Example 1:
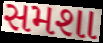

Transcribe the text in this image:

સમશા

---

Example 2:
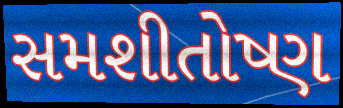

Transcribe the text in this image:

સમશીતોષ્ણ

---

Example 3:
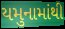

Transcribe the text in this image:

યમુનામાંથી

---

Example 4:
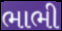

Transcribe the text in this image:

ભાભી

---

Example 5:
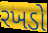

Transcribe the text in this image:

રખડો